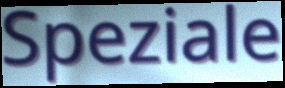
Speziale